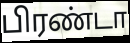
பிரண்டா